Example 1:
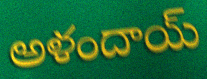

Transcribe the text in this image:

అళందాయ్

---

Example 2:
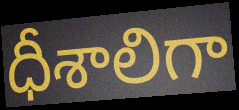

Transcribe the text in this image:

ధీశాలిగా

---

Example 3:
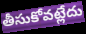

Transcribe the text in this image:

తీసుకోవట్లేదు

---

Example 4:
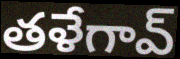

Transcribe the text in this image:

తళేగావ్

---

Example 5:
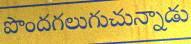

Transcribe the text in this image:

పొందగలుగుచున్నాడు